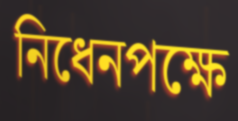
নিধেনপক্ষে